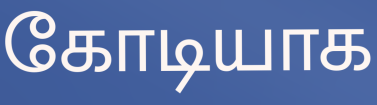
கோடியாக